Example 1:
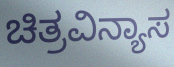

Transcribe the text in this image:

ಚಿತ್ರವಿನ್ಯಾಸ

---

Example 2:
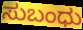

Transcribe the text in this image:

ಸುಬಂಧು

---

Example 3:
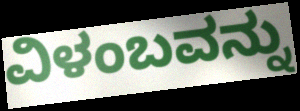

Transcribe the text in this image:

ವಿಳಂಬವನ್ನು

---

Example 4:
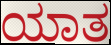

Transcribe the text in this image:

ಯಾತ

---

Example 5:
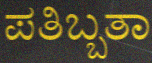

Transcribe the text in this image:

ಪತಿಬ್ಬತಾ